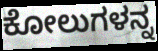
ಕೋಲುಗಳನ್ನ